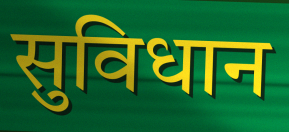
सुविधान